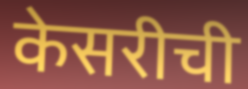
केसरीची